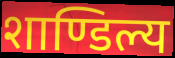
शाण्डिल्य